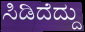
ಸಿಡಿದೆದ್ದು